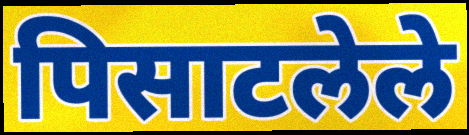
पिसाटलेले